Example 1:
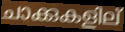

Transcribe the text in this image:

ചാക്കുകളില്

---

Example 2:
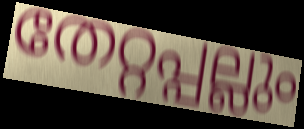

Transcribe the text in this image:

തേറ്റപ്പല്ലും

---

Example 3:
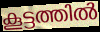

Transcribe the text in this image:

കൂട്ടത്തിൽ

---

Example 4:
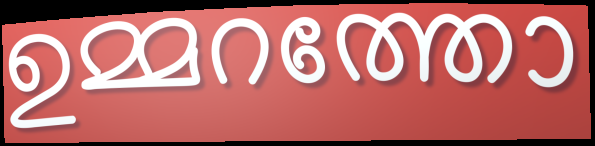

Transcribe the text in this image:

ഉമ്മറത്തോ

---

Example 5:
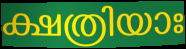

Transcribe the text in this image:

ക്ഷത്രിയാഃ